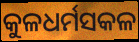
କୁଳଧର୍ମସକଳ